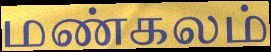
மண்கலம்